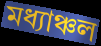
মধ্যাঞ্চল